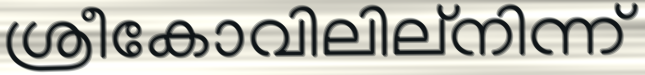
ശ്രീകോവിലില്നിന്ന്